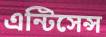
এন্টিসেন্স